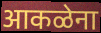
आकळेना